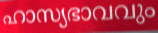
ഹാസ്യഭാവവും